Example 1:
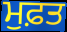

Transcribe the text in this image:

ਮੁਫ਼ਤ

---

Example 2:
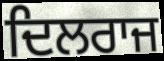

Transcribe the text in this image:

ਦਿਲਰਾਜ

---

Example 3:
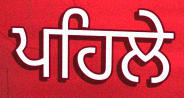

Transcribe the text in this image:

ਪਹਿਲੇ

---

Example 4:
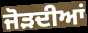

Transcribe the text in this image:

ਜੋੜਦੀਆਂ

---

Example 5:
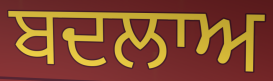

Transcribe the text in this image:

ਬਦਲਾਅ